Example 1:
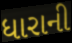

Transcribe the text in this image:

ધારાની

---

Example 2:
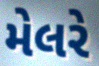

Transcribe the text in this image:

મેલરે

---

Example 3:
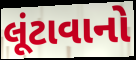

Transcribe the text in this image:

લૂંટાવાનો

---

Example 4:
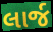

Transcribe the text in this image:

લાર્જ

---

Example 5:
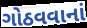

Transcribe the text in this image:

ગોઠવવાનાં